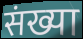
संख्‍या